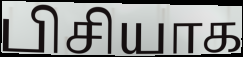
பிசியாக